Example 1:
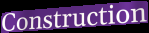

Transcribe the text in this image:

Construction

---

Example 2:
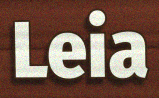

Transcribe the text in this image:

Leia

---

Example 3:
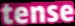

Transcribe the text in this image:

tense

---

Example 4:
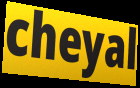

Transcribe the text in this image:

cheyal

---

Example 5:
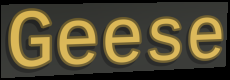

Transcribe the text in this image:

Geese